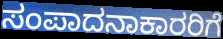
ಸಂಪಾದನಾಕಾರರಿಗೆ